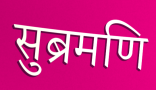
सुब्रमणि